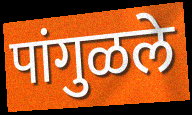
पांगुळले